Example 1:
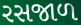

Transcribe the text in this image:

રસજાળ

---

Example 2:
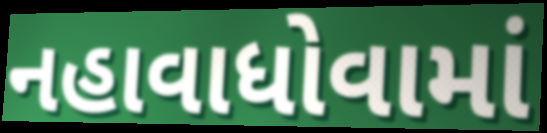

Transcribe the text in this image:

નહાવાધોવામાં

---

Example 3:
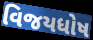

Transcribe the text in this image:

વિજયધોષ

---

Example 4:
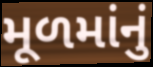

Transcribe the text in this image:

મૂળમાંનું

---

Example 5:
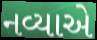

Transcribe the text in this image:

નવ્યાએ